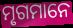
ମୃଗମାନେ